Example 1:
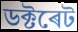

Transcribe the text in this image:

ডক্টৰেট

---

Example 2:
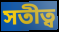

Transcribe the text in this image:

সতীত্ব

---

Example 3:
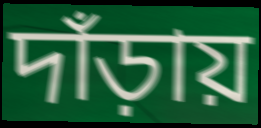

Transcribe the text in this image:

দাঁড়ায়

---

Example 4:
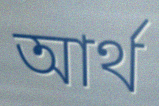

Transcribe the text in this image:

আৰ্থ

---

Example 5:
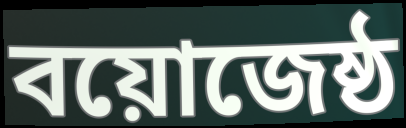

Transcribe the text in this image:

বয়োজেষ্ঠ